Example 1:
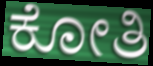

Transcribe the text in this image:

ಕೋತಿ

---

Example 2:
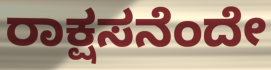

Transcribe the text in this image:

ರಾಕ್ಷಸನೆಂದೇ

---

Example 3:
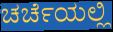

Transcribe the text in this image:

ಚರ್ಚೆಯಲ್ಲಿ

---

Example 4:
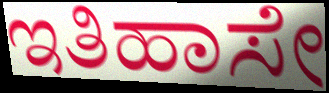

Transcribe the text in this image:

ಇತಿಹಾಸೇ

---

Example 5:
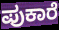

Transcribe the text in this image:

ಪುಕಾರೆ